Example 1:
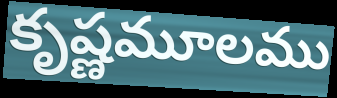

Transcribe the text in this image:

కృష్ణమూలము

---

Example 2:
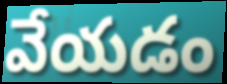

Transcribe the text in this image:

వేయడం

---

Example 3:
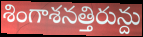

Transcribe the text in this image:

శింగాశనత్తిరున్దు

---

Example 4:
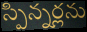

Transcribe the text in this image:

స్పిన్నర్లను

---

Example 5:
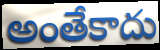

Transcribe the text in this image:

అంతేకాదు